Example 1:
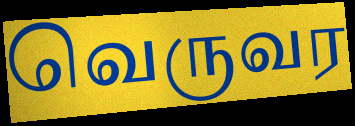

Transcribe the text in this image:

வெருவர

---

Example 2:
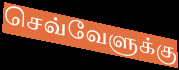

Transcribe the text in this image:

செவ்வேளுக்கு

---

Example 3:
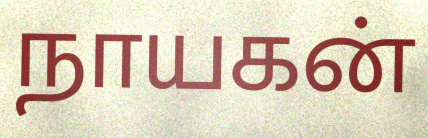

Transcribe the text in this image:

நாயகன்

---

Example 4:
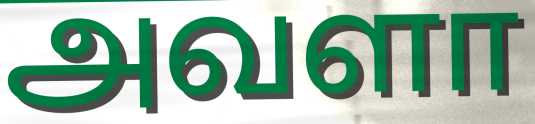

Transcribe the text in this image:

அவளா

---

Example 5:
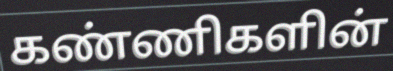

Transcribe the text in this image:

கண்ணிகளின்